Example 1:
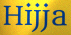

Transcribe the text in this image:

Hijja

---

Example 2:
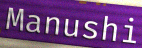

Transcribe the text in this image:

Manushi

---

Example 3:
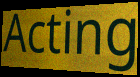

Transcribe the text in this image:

Acting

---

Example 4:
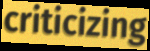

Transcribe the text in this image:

criticizing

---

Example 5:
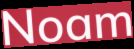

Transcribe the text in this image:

Noam